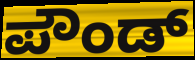
ಪೌಂಡ್